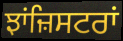
ਝਾਂਜ਼ਿਸਟਰਾਂ